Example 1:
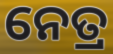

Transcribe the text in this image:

ନେତ୍ର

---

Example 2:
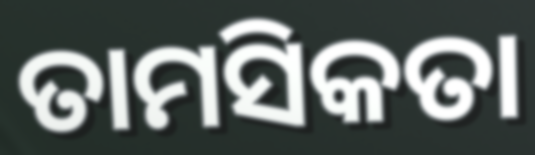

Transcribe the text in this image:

ତାମସିକତା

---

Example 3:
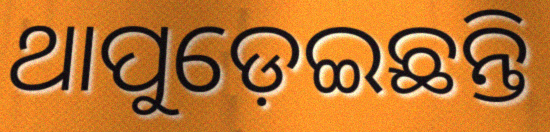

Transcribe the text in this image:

ଥାପୁଡ଼େଇଛନ୍ତି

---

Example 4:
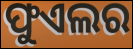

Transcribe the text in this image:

ଫୁଏଲର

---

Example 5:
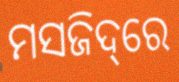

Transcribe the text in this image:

ମସଜିଦ୍‌ରେ